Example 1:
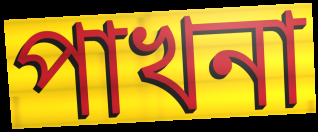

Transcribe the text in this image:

পাখনা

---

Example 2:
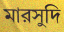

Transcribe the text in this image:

মারসুদি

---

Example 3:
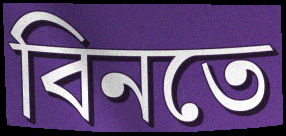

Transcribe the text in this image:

বিনতে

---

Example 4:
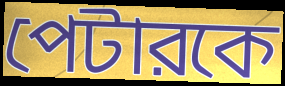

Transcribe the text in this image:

পেটারকে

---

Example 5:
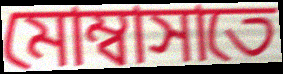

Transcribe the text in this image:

মোম্বাসাতে